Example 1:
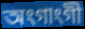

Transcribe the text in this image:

অংগাংগী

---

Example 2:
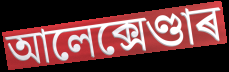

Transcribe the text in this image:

আলেক্সেণ্ডাৰ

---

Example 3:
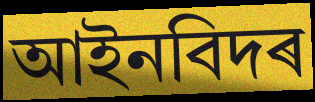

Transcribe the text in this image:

আইনবিদৰ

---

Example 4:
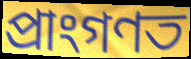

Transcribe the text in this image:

প্ৰাংগণত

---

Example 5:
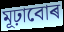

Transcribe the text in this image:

মূঢ়াবোৰ